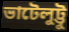
ভাটেলুট্টু